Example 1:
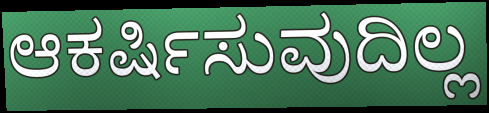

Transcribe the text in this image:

ಆಕರ್ಷಿಸುವುದಿಲ್ಲ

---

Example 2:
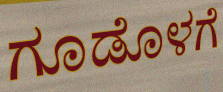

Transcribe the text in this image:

ಗೂಡೊಳಗೆ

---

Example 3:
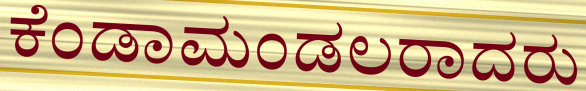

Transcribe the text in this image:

ಕೆಂಡಾಮಂಡಲರಾದರು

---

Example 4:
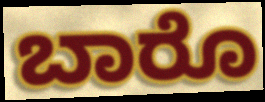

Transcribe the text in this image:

ಬಾರೊ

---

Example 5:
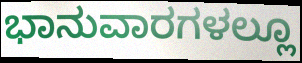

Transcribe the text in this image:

ಭಾನುವಾರಗಳಲ್ಲೂ